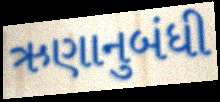
ઋણાનુબંધી